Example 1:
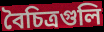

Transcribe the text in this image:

বৈচিত্রগুলি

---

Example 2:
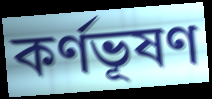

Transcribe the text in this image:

কর্ণভূষণ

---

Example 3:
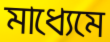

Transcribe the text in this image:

মাধ্যেমে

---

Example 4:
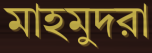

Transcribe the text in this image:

মাহমুদরা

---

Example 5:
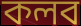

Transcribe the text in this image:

কলব